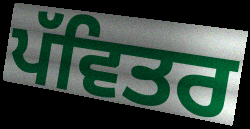
ਪੱਵਿਤਰ